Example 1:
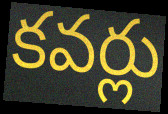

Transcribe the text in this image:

కవర్లు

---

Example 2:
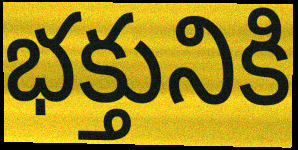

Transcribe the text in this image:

భక్తునికి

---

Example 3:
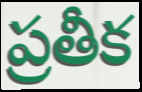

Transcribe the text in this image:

ప్రతీక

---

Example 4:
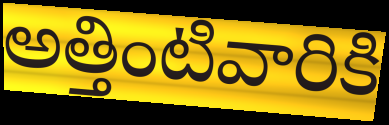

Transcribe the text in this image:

అత్తింటివారికి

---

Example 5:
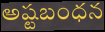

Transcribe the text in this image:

అష్టబంధన